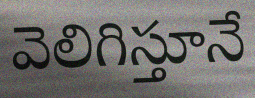
వెలిగిస్తూనే